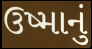
ઉષ્માનું